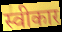
स्वीकार